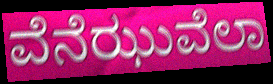
ವೆನೆಝುವೆಲಾ